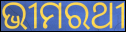
ଭୀମରଥୀ